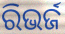
ରିଭର୍ଜ